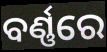
ବର୍ଣ୍ଣରେ